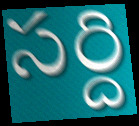
సర్ది